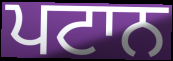
ਪਟਾਨ